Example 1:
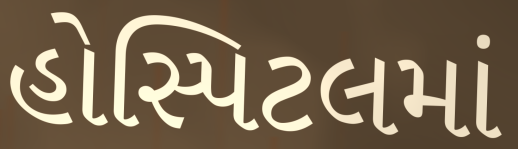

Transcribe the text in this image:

હોસ્પિટલમાં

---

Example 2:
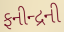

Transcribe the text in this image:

ફનીન્દ્રની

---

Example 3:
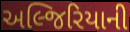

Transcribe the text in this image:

અલ્જિરિયાની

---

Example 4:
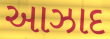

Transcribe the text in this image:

આઝાદ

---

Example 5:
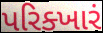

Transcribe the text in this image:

પરિક્ખારં